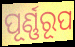
ପୂର୍ଣ୍ଣରୂପ